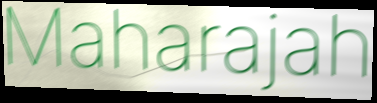
Maharajah